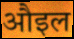
औइल